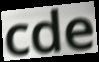
cde